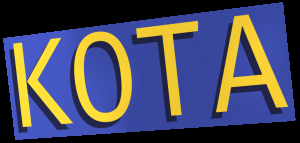
KOTA